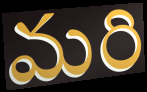
మరి